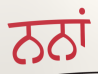
ਨਨਾਂ